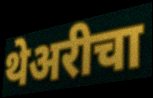
थेअरीचा